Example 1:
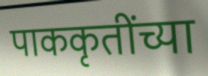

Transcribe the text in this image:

पाककृतींच्या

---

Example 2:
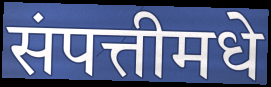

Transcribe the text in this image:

संपत्तीमधे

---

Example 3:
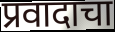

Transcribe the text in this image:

प्रवादाचा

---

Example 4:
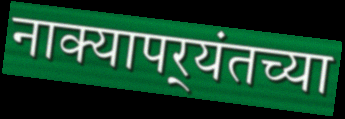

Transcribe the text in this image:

नाक्यापर्यंतच्या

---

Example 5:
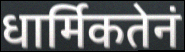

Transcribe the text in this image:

धार्मिकतेनं